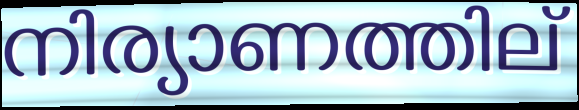
നിര്യാണത്തില്